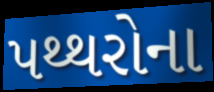
પથ્થરોના